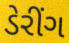
ડેરીંગ